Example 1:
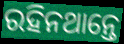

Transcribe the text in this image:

ରହିନଥାନ୍ତେ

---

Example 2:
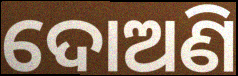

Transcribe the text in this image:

ଦୋଅଣି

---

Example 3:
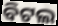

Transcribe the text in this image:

ବିଟଲ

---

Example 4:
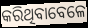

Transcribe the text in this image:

କରିଥିବାବେଳେ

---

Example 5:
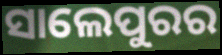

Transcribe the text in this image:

ସାଲେପୁରର